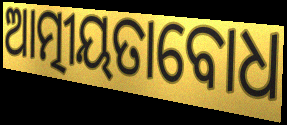
ଆତ୍ମୀୟତାବୋଧ